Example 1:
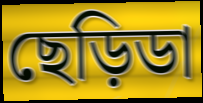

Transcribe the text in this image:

ছেড়িডা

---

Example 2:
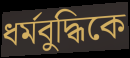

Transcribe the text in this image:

ধর্মবুদ্ধিকে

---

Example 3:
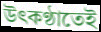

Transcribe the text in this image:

উৎকণ্ঠাতেই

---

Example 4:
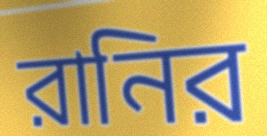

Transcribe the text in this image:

রানির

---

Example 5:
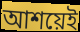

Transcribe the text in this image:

আশয়েই